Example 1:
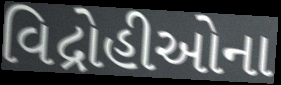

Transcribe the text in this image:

વિદ્રોહીઓના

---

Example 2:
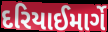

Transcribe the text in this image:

દરિયાઈમાર્ગે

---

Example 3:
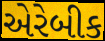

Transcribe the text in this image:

એરેબીક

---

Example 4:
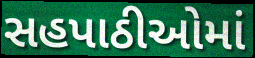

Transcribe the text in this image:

સહપાઠીઓમાં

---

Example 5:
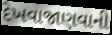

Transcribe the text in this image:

દેખવાજાણવાની